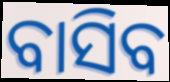
ବାସିବ